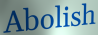
Abolish